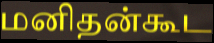
மனிதன்கூட